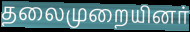
தலைமுறையினர்